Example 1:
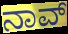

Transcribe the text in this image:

ನಾವ್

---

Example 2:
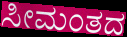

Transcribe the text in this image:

ಸೀಮಂತದ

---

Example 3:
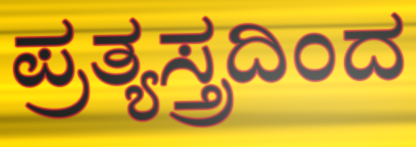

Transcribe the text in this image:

ಪ್ರತ್ಯಸ್ತ್ರದಿಂದ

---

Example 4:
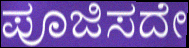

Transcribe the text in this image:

ಪೂಜಿಸದೇ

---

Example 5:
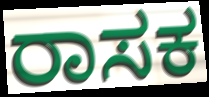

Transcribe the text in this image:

ರಾಸಕ